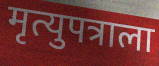
मृत्युपत्राला